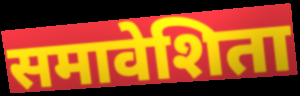
समावेशिता